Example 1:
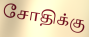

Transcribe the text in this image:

சோதிக்கு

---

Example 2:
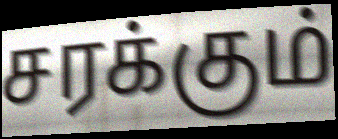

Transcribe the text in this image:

சரக்கும்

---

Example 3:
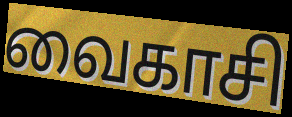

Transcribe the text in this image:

வைகாசி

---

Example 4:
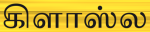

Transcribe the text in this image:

கிளாஸ்ல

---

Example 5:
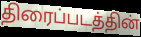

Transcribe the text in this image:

திரைப்படத்தின்